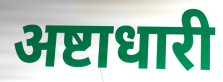
अष्टाधारी